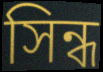
সিন্ধ